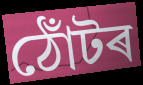
ঠোঁটৰ